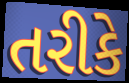
તરીકે